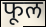
फूल